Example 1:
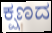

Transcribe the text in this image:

ಕ್ಷಣದ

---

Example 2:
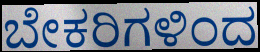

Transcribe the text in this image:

ಬೇಕರಿಗಳಿಂದ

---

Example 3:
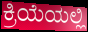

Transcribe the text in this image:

ಕ್ರಿಯೆಯಲ್ಲಿ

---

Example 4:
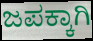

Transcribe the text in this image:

ಜಪಕ್ಕಾಗಿ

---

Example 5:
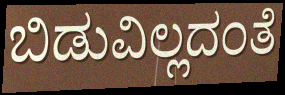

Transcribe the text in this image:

ಬಿಡುವಿಲ್ಲದಂತೆ